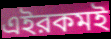
এইরকমই